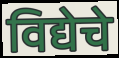
विद्येचे